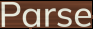
Parse